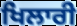
ਖਿਲਾਰੀ